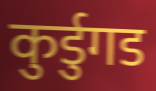
कुर्डुगड